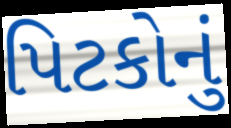
પિટકોનું